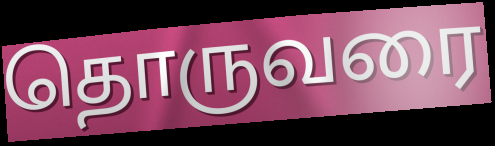
தொருவரை